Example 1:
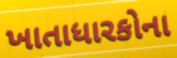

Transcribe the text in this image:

ખાતાધારકોના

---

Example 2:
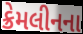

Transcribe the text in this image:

ક્રેમલીનના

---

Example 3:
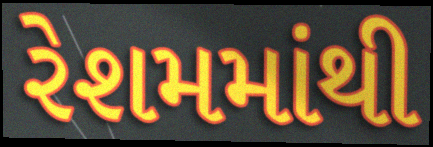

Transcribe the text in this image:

રેશમમાંથી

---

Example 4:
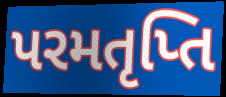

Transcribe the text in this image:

પરમતૃપ્તિ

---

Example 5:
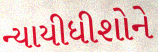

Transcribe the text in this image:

ન્યાયીધીશોને